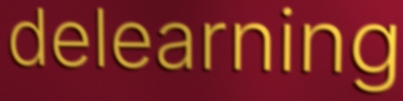
delearning